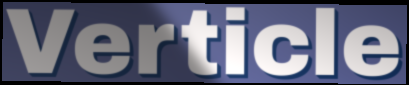
Verticle